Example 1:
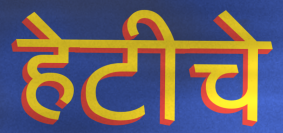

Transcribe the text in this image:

हेटीचे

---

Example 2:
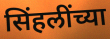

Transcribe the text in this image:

सिंहलींच्या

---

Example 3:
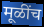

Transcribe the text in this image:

मूळींच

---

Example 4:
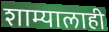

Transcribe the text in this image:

शाम्यालाही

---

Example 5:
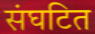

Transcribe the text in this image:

संघटित